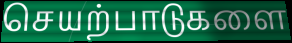
செயற்பாடுகளை